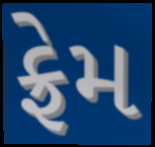
ફ્રેમ